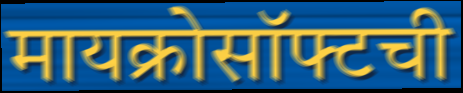
मायक्रोसॉफ्टची